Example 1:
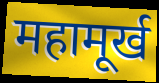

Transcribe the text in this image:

महामूर्ख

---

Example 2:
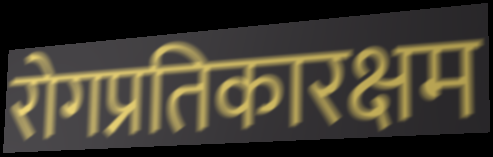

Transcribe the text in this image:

रोगप्रतिकारक्षम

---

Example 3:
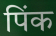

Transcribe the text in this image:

पिंक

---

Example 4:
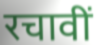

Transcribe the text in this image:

रचावीं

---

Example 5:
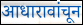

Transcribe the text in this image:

आधारावांचून